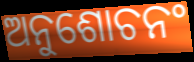
ଅନୁଶୋଚନଂ